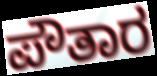
ಪೌತಾರ